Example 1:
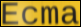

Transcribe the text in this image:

Ecma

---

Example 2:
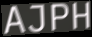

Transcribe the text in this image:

AJPH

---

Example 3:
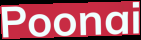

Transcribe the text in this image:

Poonai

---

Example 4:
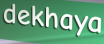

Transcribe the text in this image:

dekhaya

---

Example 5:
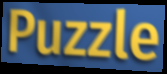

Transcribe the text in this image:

Puzzle